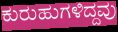
ಕುರುಹುಗಳಿದ್ದವು